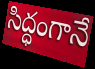
సిద్ధంగానే